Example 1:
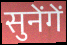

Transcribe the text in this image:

सुनेंगें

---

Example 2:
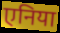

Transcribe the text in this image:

एनिया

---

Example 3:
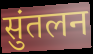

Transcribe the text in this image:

सुंतलन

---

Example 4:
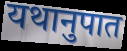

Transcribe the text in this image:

यथानुपात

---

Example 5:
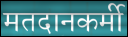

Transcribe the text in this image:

मतदानकर्मी